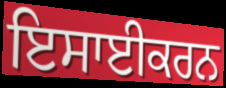
ਇਸਾਈਕਰਨ